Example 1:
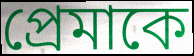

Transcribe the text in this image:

প্রেমাকে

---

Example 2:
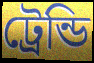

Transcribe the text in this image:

ট্রেন্ডি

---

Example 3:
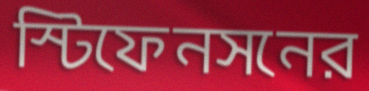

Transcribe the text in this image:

স্টিফেনসনের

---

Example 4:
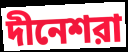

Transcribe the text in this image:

দীনেশরা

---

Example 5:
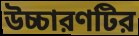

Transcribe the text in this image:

উচ্চারণটির